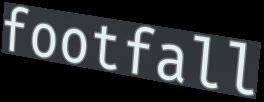
footfall